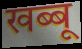
खब्‍बू